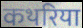
कथरिया